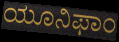
ಯೂನಿಫಾಂ